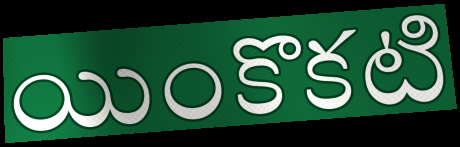
యింకొకటి